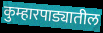
कुम्हारपाड्यातील